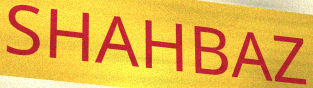
SHAHBAZ